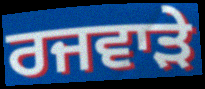
ਰਜਵਾੜੇ